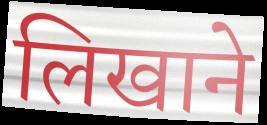
लिखाने